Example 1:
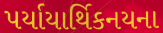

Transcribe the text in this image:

પર્યાયાર્થિકનયના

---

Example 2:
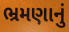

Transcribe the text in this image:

ભ્રમણાનું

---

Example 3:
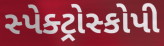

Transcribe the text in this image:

સ્પેક્ટ્રોસ્કોપી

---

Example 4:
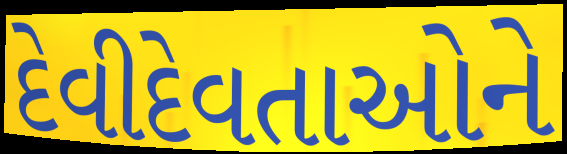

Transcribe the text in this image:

દેવીદેવતાઓને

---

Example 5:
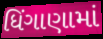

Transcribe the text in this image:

ધિંગાણામાં